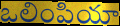
ఒలింపియా